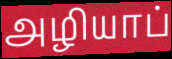
அழியாப்